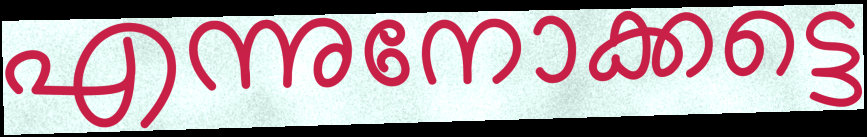
എന്നുനോക്കട്ടെ